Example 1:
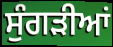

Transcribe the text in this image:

ਸੁੰਗੜੀਆਂ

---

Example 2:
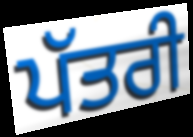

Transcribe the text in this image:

ਪੱਤਰੀ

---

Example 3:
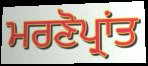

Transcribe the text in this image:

ਮਰਣੋਪ੍ਰਾਂਤ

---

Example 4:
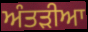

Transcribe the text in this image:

ਅੰਤੜੀਆ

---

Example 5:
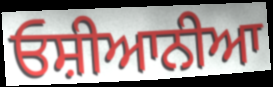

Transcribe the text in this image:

ਓਸ਼ੀਆਨੀਆ